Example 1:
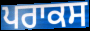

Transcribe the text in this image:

ਪਰਾਕਸ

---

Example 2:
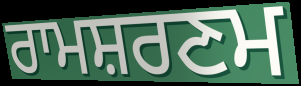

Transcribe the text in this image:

ਰਾਮਸ਼ਰਣਮ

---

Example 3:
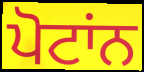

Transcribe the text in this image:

ਪੋਟਾਂਨ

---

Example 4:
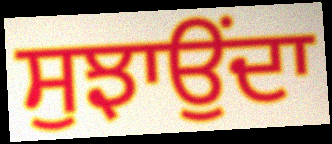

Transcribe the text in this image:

ਸੁਝਾਉਂਦਾ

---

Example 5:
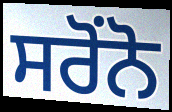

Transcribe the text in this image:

ਸਰੋਂਨੋ